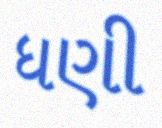
ધણી